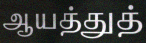
ஆயத்துத்